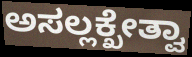
ಅಸಲ್ಲಕ್ಖೇತ್ವಾ